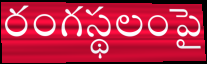
రంగస్థలంపై